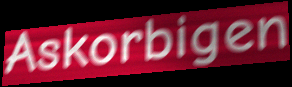
Askorbigen